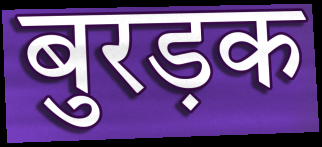
बुरड़क